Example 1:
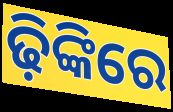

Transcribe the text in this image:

ଢ଼ିଙ୍କିରେ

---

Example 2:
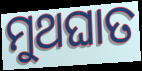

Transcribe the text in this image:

ମୁଥଘାତ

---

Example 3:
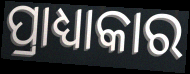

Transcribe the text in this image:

ପ୍ରାଧ୍ୟାକାର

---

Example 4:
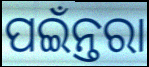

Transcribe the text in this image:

ପଇଁନ୍ତରା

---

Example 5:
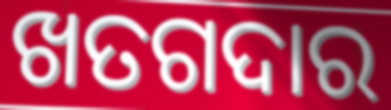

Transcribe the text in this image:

ଖତଗଦାର